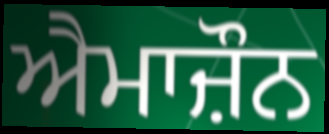
ਐਮਾਜ਼ੌਨ